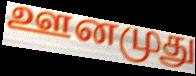
ஊனமுது